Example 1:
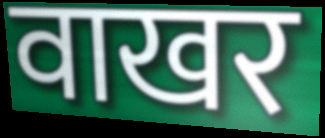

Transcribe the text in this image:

वाखर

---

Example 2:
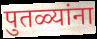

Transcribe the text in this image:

पुतळ्यांना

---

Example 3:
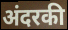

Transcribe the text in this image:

अंदरकी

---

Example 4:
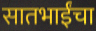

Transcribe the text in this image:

सातभाईंचा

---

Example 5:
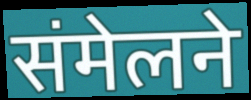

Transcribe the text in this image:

संमेलने